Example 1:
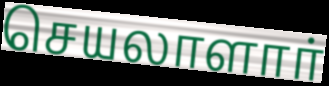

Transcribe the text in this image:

செயலாளார்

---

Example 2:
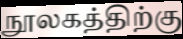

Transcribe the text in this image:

நூலகத்திற்கு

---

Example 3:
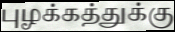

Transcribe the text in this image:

புழக்கத்துக்கு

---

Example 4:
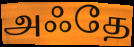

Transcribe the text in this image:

அஃதே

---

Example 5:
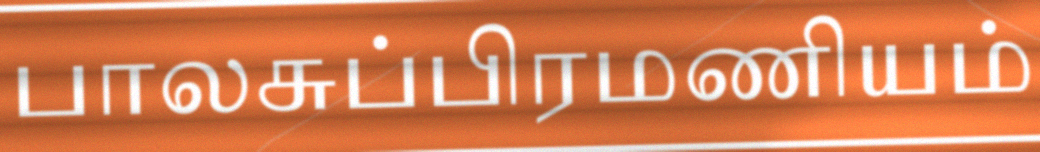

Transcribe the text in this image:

பாலசுப்பிரமணியம்